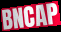
BNCAP